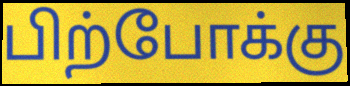
பிற்போக்கு